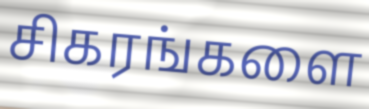
சிகரங்களை